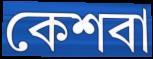
কেশবা